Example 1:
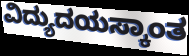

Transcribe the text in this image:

ವಿದ್ಯುದಯಸ್ಕಾಂತ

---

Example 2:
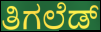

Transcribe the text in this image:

ತಿಗಲೆಡ್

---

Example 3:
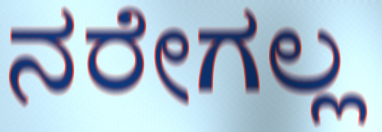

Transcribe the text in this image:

ನರೇಗಲ್ಲ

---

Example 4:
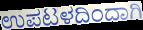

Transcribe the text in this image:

ಉಪಟಳದಿಂದಾಗಿ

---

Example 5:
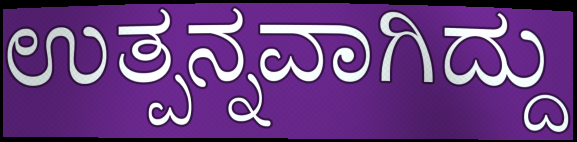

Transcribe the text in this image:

ಉತ್ಪನ್ನವಾಗಿದ್ದು